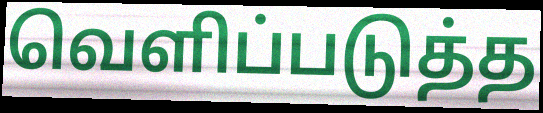
வெளிப்படுத்த